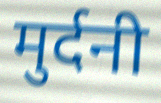
मुर्दनी